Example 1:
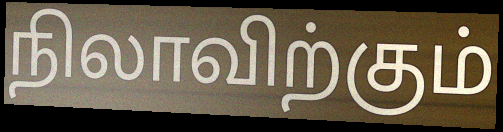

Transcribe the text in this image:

நிலாவிற்கும்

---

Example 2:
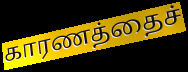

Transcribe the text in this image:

காரணத்தைச்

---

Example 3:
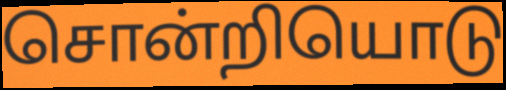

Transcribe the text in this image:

சொன்றியொடு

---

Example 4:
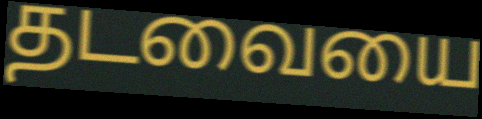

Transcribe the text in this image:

தடவையை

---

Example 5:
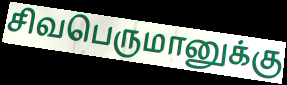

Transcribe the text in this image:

சிவபெருமானுக்கு